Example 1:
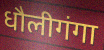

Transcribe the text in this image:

धौलीगंगा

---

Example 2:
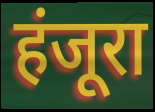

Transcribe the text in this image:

हंजूरा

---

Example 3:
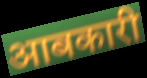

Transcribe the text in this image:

आबकारी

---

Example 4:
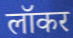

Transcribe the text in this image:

लॉकर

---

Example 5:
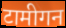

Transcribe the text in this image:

टामीगन